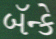
બૅન્કે